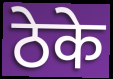
ठेके